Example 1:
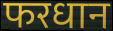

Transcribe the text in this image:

फरधान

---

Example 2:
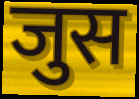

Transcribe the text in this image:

जुस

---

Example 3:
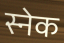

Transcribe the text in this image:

स्‍नेक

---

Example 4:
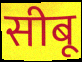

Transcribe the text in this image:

सीबू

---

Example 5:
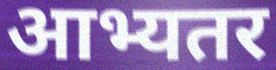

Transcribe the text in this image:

आभ्यतर